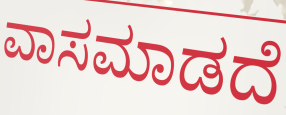
ವಾಸಮಾಡದೆ